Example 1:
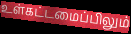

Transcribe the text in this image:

உள்கட்டமைப்பிலும்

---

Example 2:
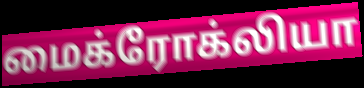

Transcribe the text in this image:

மைக்ரோக்லியா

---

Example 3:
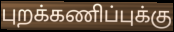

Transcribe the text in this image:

புறக்கணிப்புக்கு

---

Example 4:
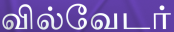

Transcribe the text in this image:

வில்வேடர்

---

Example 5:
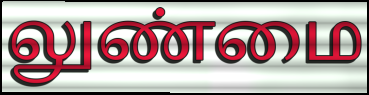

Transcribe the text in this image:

லுண்மை